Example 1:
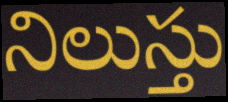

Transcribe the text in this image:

నిలుస్తు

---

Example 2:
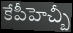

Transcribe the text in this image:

కేపీహెచ్బీ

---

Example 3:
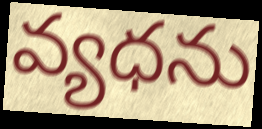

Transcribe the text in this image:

వ్యధను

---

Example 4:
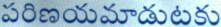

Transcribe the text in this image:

పరిణయమాడుటకు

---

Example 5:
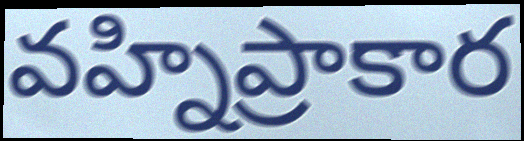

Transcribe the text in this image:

వహ్నిప్రాకార